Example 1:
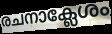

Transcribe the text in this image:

രചനാക്ലേശം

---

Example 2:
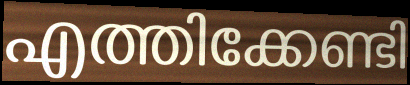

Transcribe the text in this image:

എത്തിക്കേണ്ടി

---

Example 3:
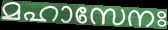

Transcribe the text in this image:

മഹാസേനഃ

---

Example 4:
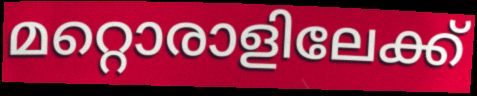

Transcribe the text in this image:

മറ്റൊരാളിലേക്ക്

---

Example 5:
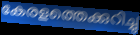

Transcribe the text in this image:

കേരളത്തെക്കുറിച്ചു